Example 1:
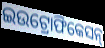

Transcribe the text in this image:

ଇଉଟ୍ରୋଫିକେସନ୍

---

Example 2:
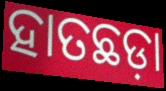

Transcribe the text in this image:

ହାତଛଡ଼ା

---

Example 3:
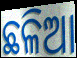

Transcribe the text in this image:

ଛଳିଆ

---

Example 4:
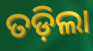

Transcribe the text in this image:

ତଡ଼ିଲା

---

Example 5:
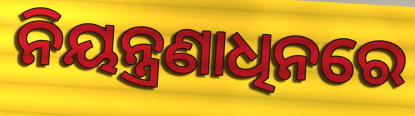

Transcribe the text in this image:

ନିୟନ୍ତ୍ରଣାଧିନରେ